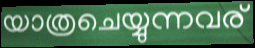
യാത്രചെയ്യുന്നവര്